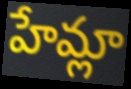
హేమ్లా